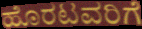
ಹೊರಟವರಿಗೆ